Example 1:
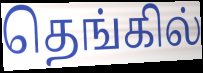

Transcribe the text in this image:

தெங்கில்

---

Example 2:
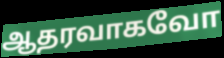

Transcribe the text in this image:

ஆதரவாகவோ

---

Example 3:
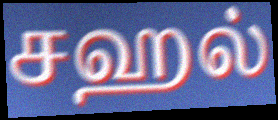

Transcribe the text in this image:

சஹல்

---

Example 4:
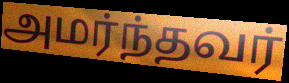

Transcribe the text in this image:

அமர்ந்தவர்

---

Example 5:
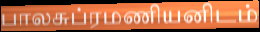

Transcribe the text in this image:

பாலசுப்ரமணியனிடம்